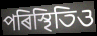
পৰিস্থিতিও